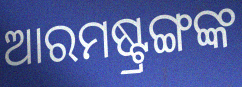
ଆରମଷ୍ଟ୍ରଙ୍ଗଙ୍କ